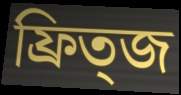
ফ্রিত্জ